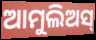
ଆମୁଲିଅସ୍